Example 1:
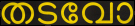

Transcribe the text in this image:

തടവോ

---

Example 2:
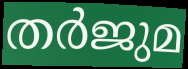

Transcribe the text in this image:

തർജുമ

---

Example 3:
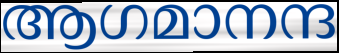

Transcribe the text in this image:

ആഗമാനന്ദ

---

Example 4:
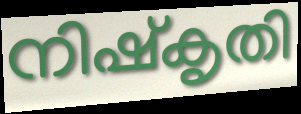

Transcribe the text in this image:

നിഷ്കൃതി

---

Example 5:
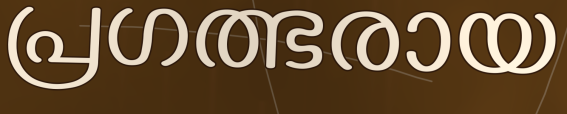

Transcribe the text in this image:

പ്രഗത്ഭരായ